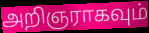
அறிஞராகவும்